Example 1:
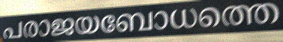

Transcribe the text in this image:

പരാജയബോധത്തെ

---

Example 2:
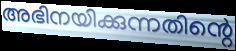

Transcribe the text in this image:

അഭിനയിക്കുന്നതിന്റെ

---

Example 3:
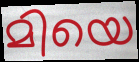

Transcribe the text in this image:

മിയെ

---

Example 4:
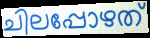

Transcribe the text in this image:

ചിലപ്പോഴത്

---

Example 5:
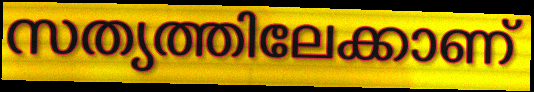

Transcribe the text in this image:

സത്യത്തിലേക്കാണ്